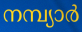
നമ്പ്യാർ